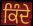
ਕਿੰਦੇ